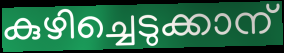
കുഴിച്ചെടുക്കാന്